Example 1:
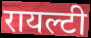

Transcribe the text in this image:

रायल्टी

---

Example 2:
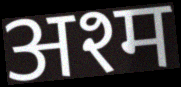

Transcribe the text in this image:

अश्म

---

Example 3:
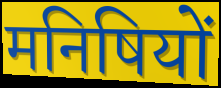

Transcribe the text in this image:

मनिषियों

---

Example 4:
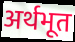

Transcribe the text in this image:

अर्थभूत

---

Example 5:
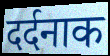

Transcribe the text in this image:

दर्दनाक